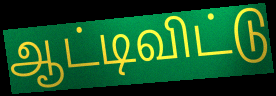
ஆட்டிவிட்டு